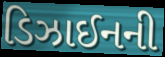
ડિઝાઈનની